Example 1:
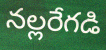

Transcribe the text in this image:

నల్లరేగడి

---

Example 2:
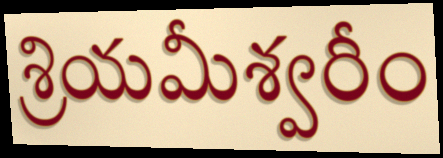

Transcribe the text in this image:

శ్రియమీశ్వరీం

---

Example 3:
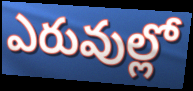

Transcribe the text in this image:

ఎరువుల్లో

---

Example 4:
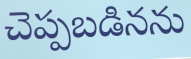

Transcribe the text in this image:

చెప్పబడినను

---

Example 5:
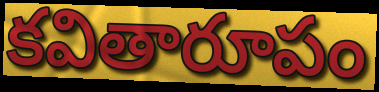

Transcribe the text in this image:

కవితారూపం